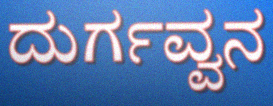
ದುರ್ಗವ್ವನ